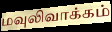
மவுலிவாக்கம்